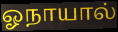
ஓநாயால்